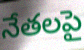
నేతలపై